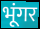
भूंगर